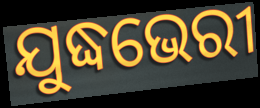
ଯୁଦ୍ଧଭେରୀ